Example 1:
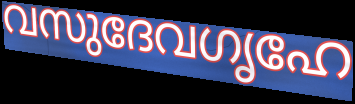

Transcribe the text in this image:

വസുദേവഗൃഹേ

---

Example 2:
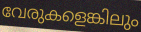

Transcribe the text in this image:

വേരുകളെങ്കിലും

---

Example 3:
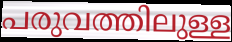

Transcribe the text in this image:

പരുവത്തിലുള്ള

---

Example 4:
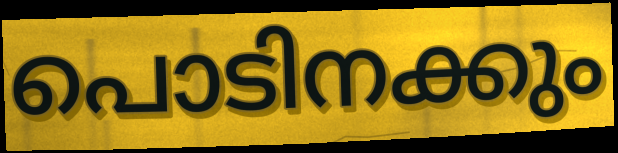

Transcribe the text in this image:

പൊടിനക്കും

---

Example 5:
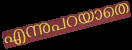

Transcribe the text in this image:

എന്നുപറയാതെ